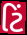
ટિં